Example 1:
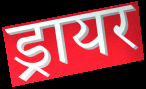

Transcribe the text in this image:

ड्रायर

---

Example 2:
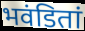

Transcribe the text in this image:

भवंडितां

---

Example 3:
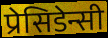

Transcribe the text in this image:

प्रेसिडेन्सी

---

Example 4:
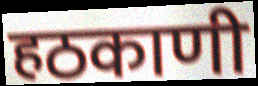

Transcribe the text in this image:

हठकाणी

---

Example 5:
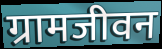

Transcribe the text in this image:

ग्रामजीवन